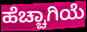
ಹೆಚ್ಚಾಗಿಯೆ